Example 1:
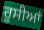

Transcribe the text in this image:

ਰੂਸੀਆਂ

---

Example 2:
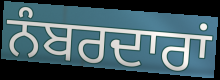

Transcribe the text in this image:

ਨੰਬਰਦਾਰਾਂ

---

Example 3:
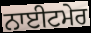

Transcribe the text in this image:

ਨਾਈਟਮੇਰ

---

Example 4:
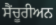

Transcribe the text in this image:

ਸੈਂਚੂਰੀਅਨ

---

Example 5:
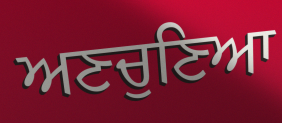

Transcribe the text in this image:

ਅਣਚੁਣਿਆ